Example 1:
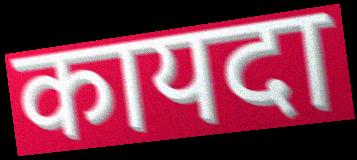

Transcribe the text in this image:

कायदा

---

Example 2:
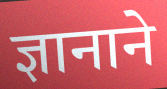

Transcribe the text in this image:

ज्ञानाने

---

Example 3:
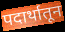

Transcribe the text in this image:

पदार्थातून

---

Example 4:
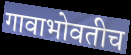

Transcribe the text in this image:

गावाभोवतीच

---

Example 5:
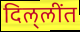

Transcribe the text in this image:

दिल्लींत